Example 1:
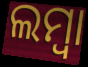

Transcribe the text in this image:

ଲମ୍ବା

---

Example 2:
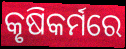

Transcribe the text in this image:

କୃଷିକର୍ମରେ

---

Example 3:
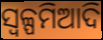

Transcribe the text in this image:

ସ୍ବଳ୍ପମିଆଦି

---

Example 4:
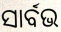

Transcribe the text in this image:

ସାର୍ବଭ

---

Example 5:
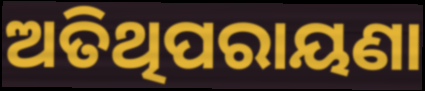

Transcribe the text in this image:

ଅତିଥିପରାୟଣା